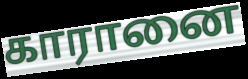
காரானை